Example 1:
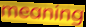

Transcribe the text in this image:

meaning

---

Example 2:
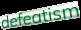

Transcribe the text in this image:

defeatism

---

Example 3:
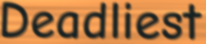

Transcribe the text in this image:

Deadliest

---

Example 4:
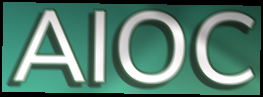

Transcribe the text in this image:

AIOC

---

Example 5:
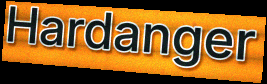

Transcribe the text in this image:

Hardanger